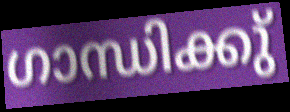
ഗാന്ധിക്കു്